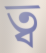
ত্ব